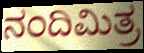
ನಂದಿಮಿತ್ರ